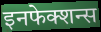
इनफेक्शन्स